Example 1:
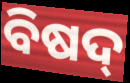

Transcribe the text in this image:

ବିଷଦ୍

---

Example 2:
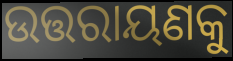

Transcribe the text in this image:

ଉତ୍ତରାୟଣକୁ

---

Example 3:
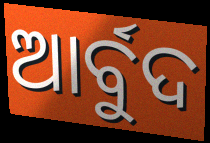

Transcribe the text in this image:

ଆର୍ବୁଦ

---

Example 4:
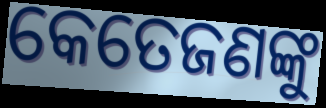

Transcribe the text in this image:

କେତେଜଣଙ୍କୁ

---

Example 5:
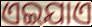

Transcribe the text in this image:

ଏଇଯାଏ